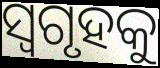
ସ୍ୱଗୃହକୁ